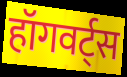
हॉगवर्ट्स